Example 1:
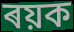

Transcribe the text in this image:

ৰয়ক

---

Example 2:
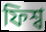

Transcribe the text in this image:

ফিশ্ব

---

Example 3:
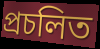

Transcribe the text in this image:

প্ৰচলিত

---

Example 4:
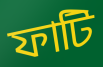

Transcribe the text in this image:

ফাটি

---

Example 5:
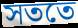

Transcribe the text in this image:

সততে